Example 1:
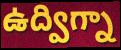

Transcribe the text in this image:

ఉద్విగ్నా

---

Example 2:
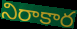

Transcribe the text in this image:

నిరాకార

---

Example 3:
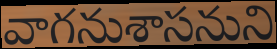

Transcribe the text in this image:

వాగనుశాసనుని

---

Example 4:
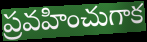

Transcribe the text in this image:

ప్రవహించుగాక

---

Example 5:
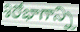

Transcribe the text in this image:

శిరోభాగాన్ని